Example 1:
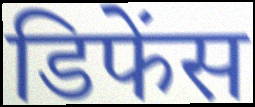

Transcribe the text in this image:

डिफेंस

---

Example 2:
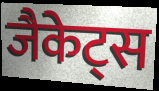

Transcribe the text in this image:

जैकेट्स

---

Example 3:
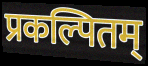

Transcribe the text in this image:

प्रकल्पितम्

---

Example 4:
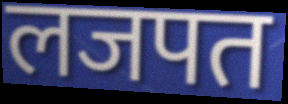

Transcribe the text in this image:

लजपत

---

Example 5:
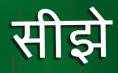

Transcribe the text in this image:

सीझे